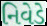
નિવેડે